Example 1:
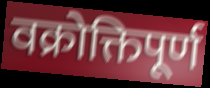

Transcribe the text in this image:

वक्रोक्तिपूर्ण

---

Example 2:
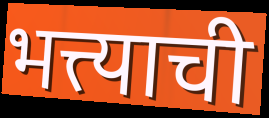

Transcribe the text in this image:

भत्त्याची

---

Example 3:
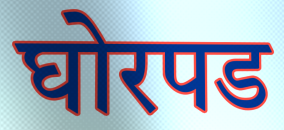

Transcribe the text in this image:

घोरपड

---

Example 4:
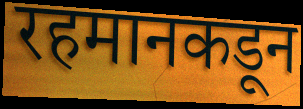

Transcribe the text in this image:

रहमानकडून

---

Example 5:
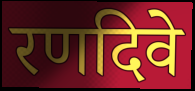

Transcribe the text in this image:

रणदिवे